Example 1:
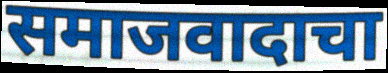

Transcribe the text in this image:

समाजवादाचा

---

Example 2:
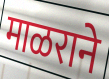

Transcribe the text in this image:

माळराने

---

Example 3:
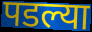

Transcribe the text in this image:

पडल्या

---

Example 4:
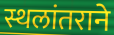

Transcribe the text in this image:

स्थलांतराने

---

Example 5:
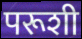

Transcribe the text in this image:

परूशी